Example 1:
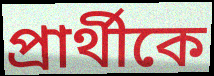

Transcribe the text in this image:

প্রার্থীকে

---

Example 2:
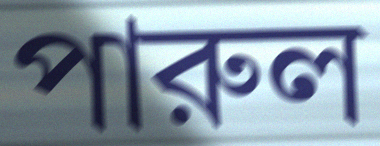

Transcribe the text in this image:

পারুল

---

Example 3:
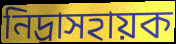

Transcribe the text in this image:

নিদ্রাসহায়ক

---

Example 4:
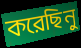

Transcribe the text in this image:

করেছিনু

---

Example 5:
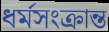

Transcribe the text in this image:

ধর্মসংক্রান্ত